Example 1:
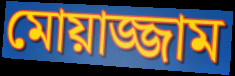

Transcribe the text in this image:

মোয়াজ্জাম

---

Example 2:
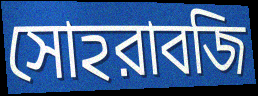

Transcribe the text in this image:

সোহরাবজি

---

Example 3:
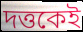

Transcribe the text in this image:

দত্তকেই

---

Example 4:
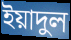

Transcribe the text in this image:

ইয়াদুল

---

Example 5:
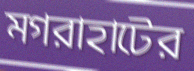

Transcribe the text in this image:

মগরাহাটের